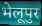
भेलूपुर